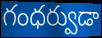
గంధర్వుడా